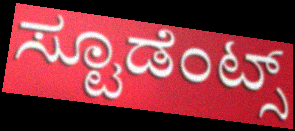
ಸ್ಟೂಡೆಂಟ್ಸ್